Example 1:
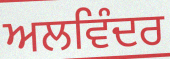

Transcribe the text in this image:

ਅਲਵਿੰਦਰ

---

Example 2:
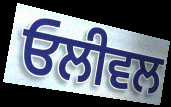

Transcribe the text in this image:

ਓਲੀਵਲ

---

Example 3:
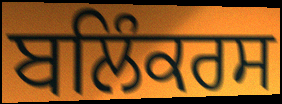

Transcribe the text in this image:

ਬਲਿੰਕਰਸ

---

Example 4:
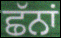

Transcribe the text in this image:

ਛੱਨਾਂ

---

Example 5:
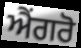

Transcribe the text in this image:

ਐਂਗਰੋ